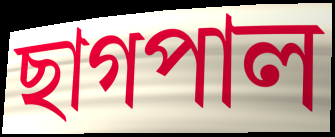
ছাগপাল